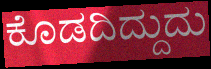
ಕೊಡದಿದ್ದುದು